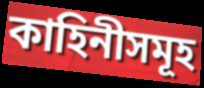
কাহিনীসমূহ